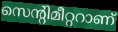
സെന്റിമീറ്ററാണ്